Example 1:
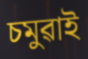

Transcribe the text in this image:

চমুৱাই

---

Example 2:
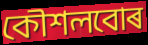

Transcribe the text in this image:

কৌশলবোৰ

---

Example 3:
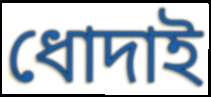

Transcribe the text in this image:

ধোদাই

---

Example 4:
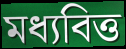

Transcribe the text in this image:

মধ্যবিত্ত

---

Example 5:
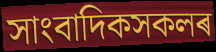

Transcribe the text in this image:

সাংবাদিকসকলৰ